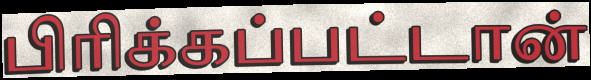
பிரிக்கப்பட்டான்